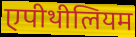
एपीथीलियम